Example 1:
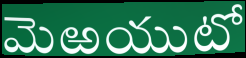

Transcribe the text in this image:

మెఱయుటో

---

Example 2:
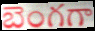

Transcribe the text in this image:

బెంగగా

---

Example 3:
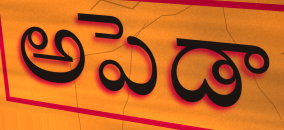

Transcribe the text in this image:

అపెడా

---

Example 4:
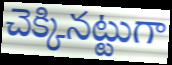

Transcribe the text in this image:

చెక్కినట్టుగా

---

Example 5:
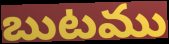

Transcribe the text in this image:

బుటము